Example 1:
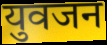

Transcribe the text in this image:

युवजन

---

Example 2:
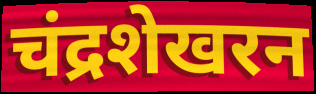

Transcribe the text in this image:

चंद्रशेखरन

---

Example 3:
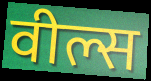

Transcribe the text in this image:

वील्स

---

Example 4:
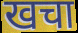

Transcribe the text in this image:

खचा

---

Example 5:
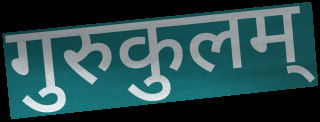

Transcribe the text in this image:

गुरुकुलम्